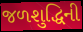
જળશુદ્ધિની